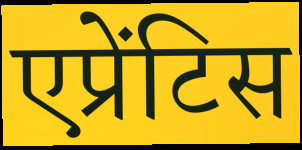
एप्रेंटिस